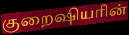
குறைஷியரின்